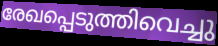
രേഖപ്പെടുത്തിവെച്ചു